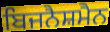
ਬਿਜਨੈਸ਼ਮੈਨ